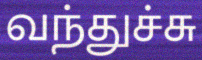
வந்துச்சு